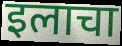
इलाचा